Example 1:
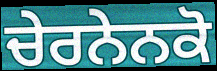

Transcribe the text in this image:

ਚੇਰਨੇਨਕੋ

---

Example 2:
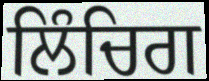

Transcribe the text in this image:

ਲਿੰਚਿਗ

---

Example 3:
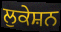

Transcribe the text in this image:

ਲੁਕੇਸ਼ਨ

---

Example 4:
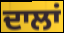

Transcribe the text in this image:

ਦਾਲਾਂ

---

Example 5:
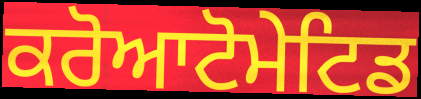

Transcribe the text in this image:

ਕਰੋਆਟੋਮੇਟਿਡ